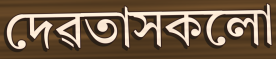
দেৱতাসকলো